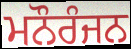
ਮਨੌਰੰਜਨ